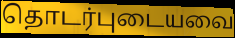
தொடர்புடையவை